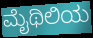
ಮೈಥಿಲಿಯ